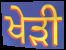
ਖੇੜੀ